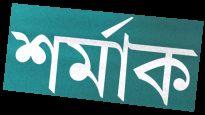
শৰ্মাক